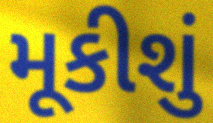
મૂકીશું